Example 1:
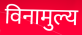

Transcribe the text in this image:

विनामुल्य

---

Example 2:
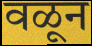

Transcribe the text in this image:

वळून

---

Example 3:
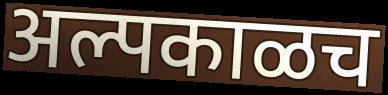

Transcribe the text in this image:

अल्पकाळच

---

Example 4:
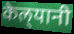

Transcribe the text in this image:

केल्यानी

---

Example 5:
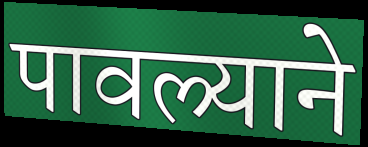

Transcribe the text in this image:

पावल्याने